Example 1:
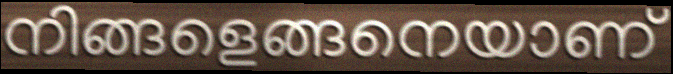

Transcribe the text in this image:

നിങ്ങളെങ്ങനെയാണ്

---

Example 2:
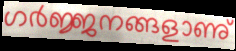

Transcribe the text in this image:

ഗർജ്ജനങ്ങളാണു്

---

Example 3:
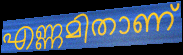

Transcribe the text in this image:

എണ്ണമിതാണ്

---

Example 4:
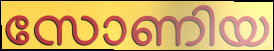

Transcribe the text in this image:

സോണിയ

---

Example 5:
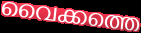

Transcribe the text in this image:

വൈക്കത്തെ